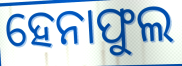
ହେନାଫୁଲ